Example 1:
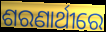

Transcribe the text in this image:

ଶରଣାର୍ଥୀରେ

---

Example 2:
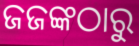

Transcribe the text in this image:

ଜଜଙ୍କଠାରୁ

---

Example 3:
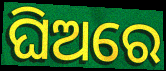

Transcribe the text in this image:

ଘିଅରେ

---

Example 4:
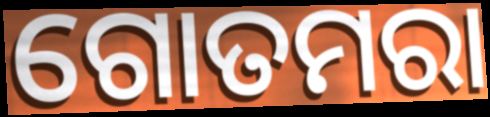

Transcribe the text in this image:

ଗୋତମରା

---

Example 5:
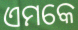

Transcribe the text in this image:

ଏମକେ